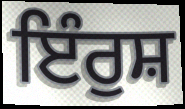
ਇੰਰੁਸ਼